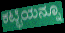
ಕಟ್ಟೆಯನ್ನೂ